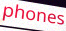
phones